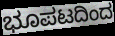
ಭೂಪಟದಿಂದ